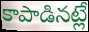
కాపాడినట్లే